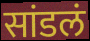
सांडलं